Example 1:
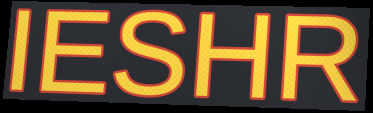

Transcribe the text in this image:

IESHR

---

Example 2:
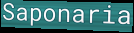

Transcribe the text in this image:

Saponaria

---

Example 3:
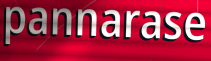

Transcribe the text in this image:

pannarase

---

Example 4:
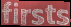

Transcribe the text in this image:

firsts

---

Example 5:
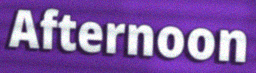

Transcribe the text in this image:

Afternoon